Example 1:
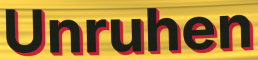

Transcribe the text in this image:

Unruhen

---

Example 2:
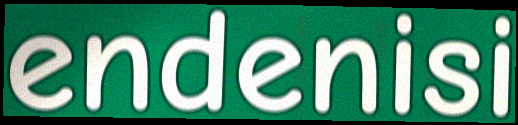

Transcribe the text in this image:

endenisi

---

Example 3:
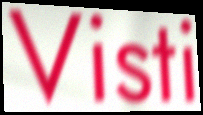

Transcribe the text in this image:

Visti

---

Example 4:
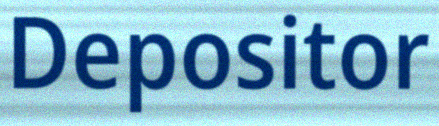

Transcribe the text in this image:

Depositor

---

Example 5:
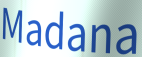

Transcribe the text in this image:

Madana